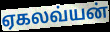
ஏகலவ்யன்